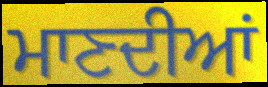
ਮਾਣਦੀਆਂ